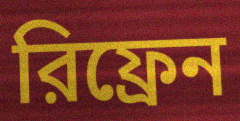
রিফ্রেন